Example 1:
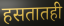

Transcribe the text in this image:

हसतातही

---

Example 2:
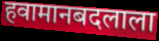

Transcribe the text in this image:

हवामानबदलाला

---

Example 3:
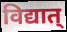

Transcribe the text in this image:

विद्यात्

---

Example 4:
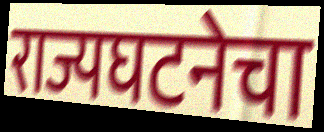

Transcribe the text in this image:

राज्यघटनेचा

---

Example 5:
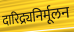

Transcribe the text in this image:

दारिद्र्यनिर्मूलन